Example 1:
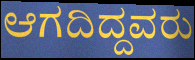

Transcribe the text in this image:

ಆಗದಿದ್ದವರು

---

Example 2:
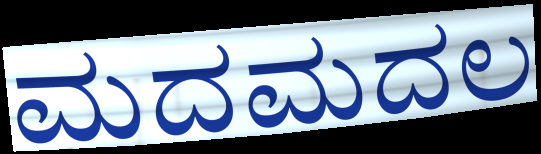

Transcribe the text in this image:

ಮದಮದಲ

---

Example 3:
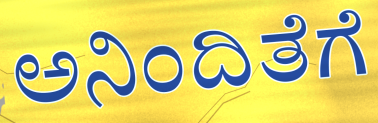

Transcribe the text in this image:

ಅನಿಂದಿತೆಗೆ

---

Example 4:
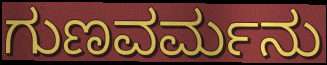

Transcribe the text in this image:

ಗುಣವರ್ಮನು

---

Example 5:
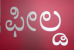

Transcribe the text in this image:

ಫೀಲ್ಡ